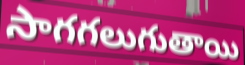
సాగగలుగుతాయి